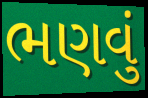
ભણવું